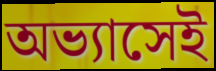
অভ্যাসেই